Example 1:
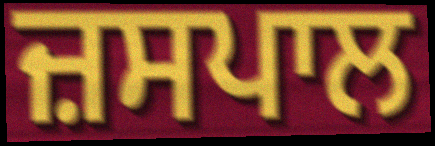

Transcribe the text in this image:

ਜ਼ਸਪਾਲ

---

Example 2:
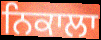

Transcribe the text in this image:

ਨਿਕਾਲਾ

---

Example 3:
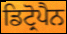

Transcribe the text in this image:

ਡਿਟ੍ਰੋਪੈਨ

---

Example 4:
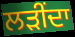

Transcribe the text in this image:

ਲੜੀਂਦਾ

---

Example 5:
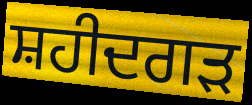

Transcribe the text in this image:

ਸ਼ਹੀਦਗੜ